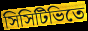
সিসিটিভিতে